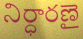
నిర్ధారణై